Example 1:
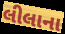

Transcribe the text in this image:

લીલાના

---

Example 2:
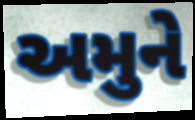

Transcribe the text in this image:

અમુને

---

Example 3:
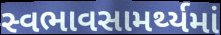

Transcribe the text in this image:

સ્વભાવસામર્થ્યમાં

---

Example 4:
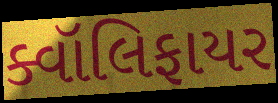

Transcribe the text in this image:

ક્વૉલિફાયર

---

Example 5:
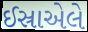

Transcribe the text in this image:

ઈસ્રાએલે